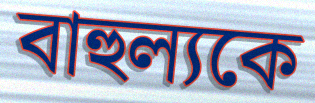
বাহুল্যকে